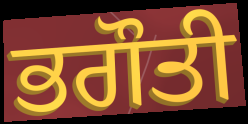
ਭਗੌਤੀ